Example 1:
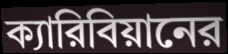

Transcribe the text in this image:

ক্যারিবিয়ানের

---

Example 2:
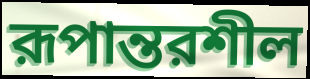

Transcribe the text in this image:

রূপান্তরশীল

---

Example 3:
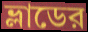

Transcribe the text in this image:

ভ্লাডের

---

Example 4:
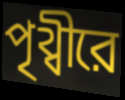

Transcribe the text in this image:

পৃথ্বীরে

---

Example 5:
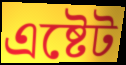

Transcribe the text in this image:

এষ্টেট